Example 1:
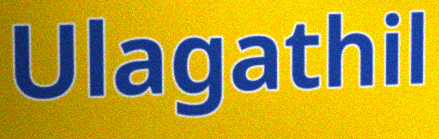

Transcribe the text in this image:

Ulagathil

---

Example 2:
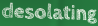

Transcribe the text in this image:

desolating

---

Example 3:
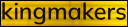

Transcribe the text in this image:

kingmakers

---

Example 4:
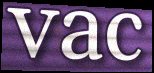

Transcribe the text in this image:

vac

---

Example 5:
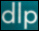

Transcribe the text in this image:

dlp